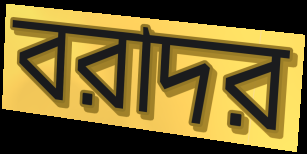
বরাদর